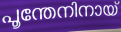
പൂന്തേനിനായ്